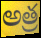
అత్ర